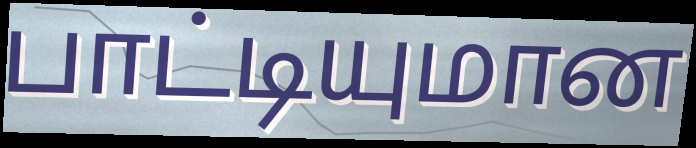
பாட்டியுமான